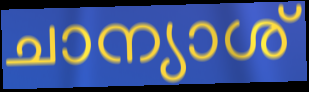
ചാന്യാശ്